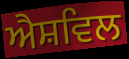
ਐਸ਼ਵਿਲ